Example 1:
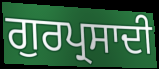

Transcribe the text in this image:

ਗੁਰਪ੍ਰਸਾਦੀ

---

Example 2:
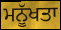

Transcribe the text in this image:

ਮਨੂੱਖਤਾ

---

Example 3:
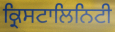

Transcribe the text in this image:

ਕ੍ਰਿਸਟਾਲਿਨਿਟੀ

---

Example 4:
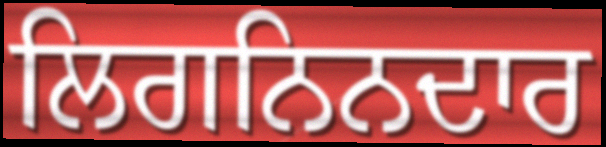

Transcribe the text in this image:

ਲਿਗਨਿਨਦਾਰ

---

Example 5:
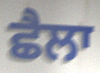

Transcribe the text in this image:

ਛੈਲਾ